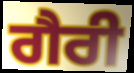
ਗੈਰੀ